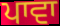
ਪਾਵਾ